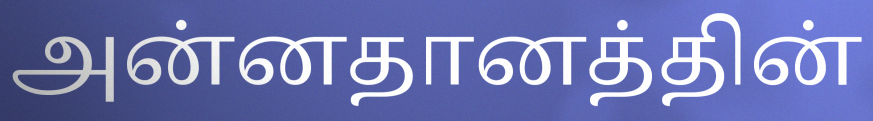
அன்னதானத்தின்